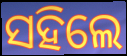
ସହିଲେ